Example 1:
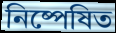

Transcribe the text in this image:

নিষ্পেষিত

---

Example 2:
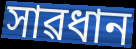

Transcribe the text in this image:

সাৱধান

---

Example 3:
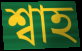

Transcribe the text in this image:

শ্বাহ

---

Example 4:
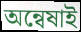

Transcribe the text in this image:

অন্বেষাই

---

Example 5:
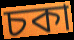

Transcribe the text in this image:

চকা